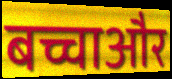
बच्चाऔर